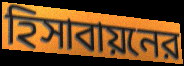
হিসাবায়নের